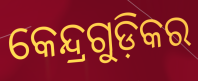
କେନ୍ଦ୍ରଗୁଡ଼ିକର